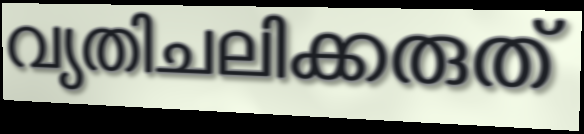
വ്യതിചലിക്കരുത്